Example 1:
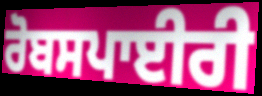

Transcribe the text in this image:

ਰੋਬਸਪਾਈਰੀ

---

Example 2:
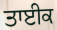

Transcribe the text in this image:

ਤਾਈਕ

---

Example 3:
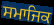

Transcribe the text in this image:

ਸਮਾਜਿਕ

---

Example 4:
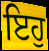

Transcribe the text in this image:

ਇਹੁ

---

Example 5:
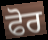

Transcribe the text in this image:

ਫੋਰ